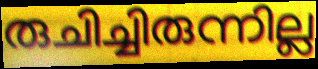
രുചിച്ചിരുന്നില്ല